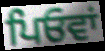
ਪਿਓਵਾਂ